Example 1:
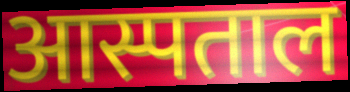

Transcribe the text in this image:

आस्पताल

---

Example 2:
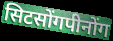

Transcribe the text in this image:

सिटसोंगपीनोंग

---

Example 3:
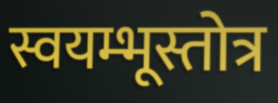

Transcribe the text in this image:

स्वयम्भूस्तोत्र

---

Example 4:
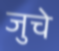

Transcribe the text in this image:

जुचे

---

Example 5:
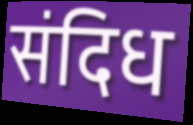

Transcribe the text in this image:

संदिध